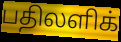
பதிலளிக்